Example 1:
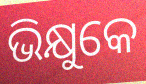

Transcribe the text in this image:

ଭିକ୍ଷୁକେ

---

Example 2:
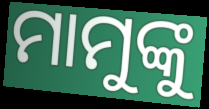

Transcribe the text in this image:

ମାମୁଙ୍କୁ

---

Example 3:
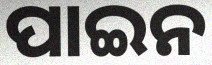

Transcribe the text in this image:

ପାଇନ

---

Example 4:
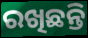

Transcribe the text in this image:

ରଖିଛନ୍ତି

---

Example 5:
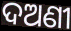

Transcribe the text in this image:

ଦଅଣୀ